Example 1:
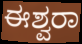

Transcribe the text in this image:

ಈಶ್ವರಾ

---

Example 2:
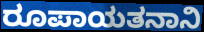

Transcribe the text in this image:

ರೂಪಾಯತನಾನಿ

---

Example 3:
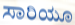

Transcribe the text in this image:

ಸಾರಿಯೂ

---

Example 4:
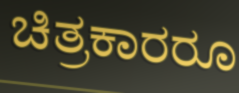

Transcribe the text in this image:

ಚಿತ್ರಕಾರರೂ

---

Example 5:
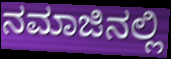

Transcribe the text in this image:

ನಮಾಜಿನಲ್ಲಿ